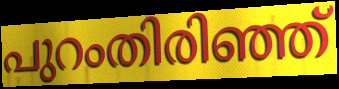
പുറംതിരിഞ്ഞ്